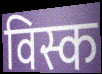
विस्क